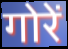
गोरें